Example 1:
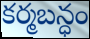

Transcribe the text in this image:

కర్మబన్ధం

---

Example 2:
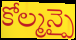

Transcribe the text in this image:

కోల్మన్పై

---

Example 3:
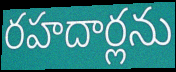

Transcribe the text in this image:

రహదార్లను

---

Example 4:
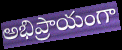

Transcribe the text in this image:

అభిప్రాయంగా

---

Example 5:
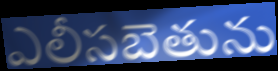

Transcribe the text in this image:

ఎలీసబెతును